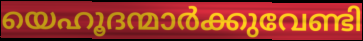
യെഹൂദന്മാർക്കുവേണ്ടി